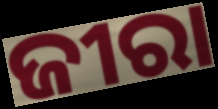
ଜୀରା